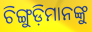
ଚିଙ୍ଗୁଡ଼ିମାନଙ୍କୁ